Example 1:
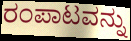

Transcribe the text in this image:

ರಂಪಾಟವನ್ನು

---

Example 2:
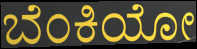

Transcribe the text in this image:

ಬೆಂಕಿಯೋ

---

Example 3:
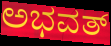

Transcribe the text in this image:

ಅಭವತ್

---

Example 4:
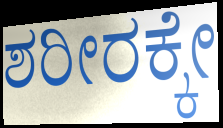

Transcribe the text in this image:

ಶರೀರಕ್ಕೇ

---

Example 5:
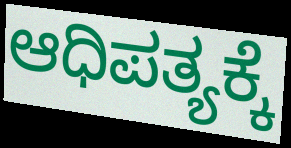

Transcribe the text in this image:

ಆಧಿಪತ್ಯಕ್ಕೆ